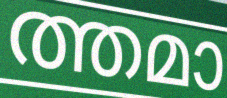
ത്തമാ